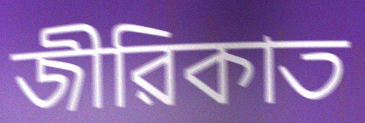
জীৱিকাত